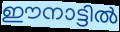
ഈനാട്ടിൽ